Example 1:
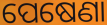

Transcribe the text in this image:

ପେଷେଣା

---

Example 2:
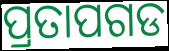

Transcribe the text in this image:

ପ୍ରତାପଗଡ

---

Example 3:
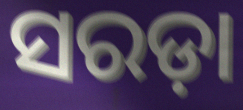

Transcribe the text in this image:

ସରଡ଼ା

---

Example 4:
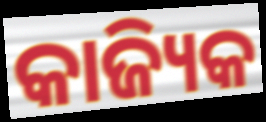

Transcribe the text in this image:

କାଜ୍ୟିକ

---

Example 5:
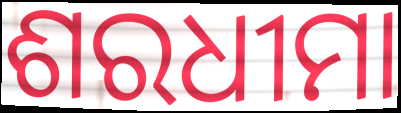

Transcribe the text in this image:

ଶରଧୀମା